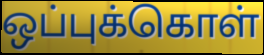
ஒப்புக்கொள்